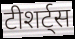
टीशर्ट्स